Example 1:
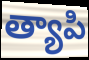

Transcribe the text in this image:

త్యాపి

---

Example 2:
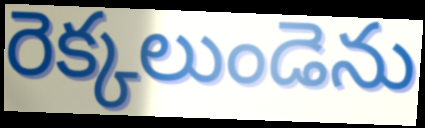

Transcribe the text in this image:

రెక్కలుండెను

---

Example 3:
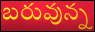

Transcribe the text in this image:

బరువున్న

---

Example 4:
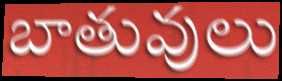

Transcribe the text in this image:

బాతువులు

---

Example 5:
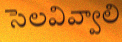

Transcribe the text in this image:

సెలవివ్వాలి